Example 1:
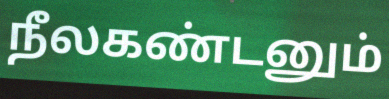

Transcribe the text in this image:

நீலகண்டனும்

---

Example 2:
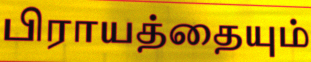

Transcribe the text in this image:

பிராயத்தையும்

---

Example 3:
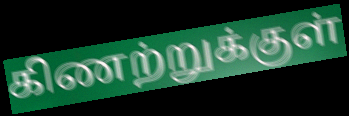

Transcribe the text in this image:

கிணற்றுக்குள்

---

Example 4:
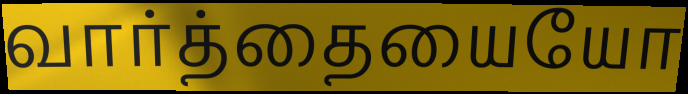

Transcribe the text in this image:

வார்த்தையையோ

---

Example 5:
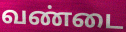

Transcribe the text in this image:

வண்டை